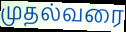
முதல்வரை